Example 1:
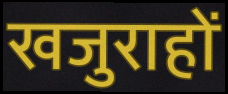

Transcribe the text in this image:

खजुराहों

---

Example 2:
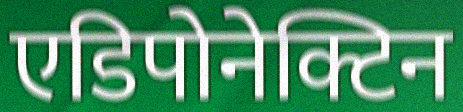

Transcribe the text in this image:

एडिपोनेक्टिन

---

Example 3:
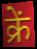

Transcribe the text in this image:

क्रें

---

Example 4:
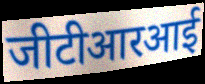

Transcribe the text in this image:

जीटीआरआई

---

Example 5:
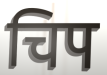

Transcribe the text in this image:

चिप